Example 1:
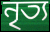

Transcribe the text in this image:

নৃত্য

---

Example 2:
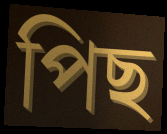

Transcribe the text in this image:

পিছ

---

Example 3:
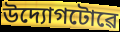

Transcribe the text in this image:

উদ্যোগটোৱে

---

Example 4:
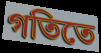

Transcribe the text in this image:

গতিতে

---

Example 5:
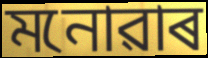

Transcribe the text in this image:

মনোৱাৰ